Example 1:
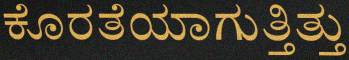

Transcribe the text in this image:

ಕೊರತೆಯಾಗುತ್ತಿತ್ತು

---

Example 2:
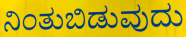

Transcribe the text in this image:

ನಿಂತುಬಿಡುವುದು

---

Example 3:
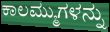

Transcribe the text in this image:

ಕಾಲಮ್ಮುಗಳನ್ನು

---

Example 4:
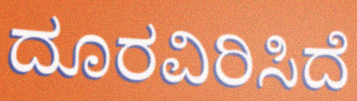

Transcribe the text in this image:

ದೂರವಿರಿಸಿದೆ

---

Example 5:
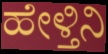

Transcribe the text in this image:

ಹೇಳ್ತಿನಿ